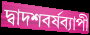
দ্বাদশবর্ষব্যাপী